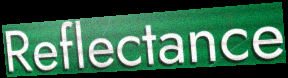
Reflectance